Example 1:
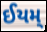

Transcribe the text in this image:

ઈયમ્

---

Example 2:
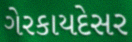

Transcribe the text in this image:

ગેરકાયદેસર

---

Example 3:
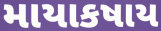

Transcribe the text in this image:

માયાકષાય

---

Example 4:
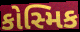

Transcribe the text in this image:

કોસ્મિક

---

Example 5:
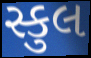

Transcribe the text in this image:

સ્કુલ